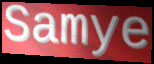
Samye